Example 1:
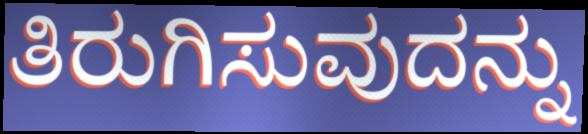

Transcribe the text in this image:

ತಿರುಗಿಸುವುದನ್ನು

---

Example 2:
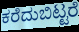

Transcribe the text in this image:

ಕರೆದುಬಿಟ್ಟರೆ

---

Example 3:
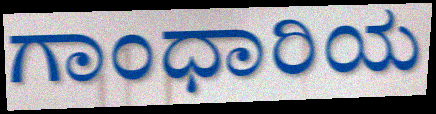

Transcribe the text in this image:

ಗಾಂಧಾರಿಯ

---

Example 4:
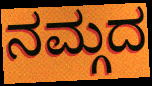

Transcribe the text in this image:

ನಮ್ಗದ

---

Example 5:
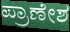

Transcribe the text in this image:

ಪ್ರಾಣೇಶ